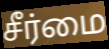
சீர்மை